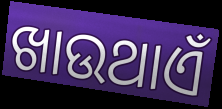
ଖାଉଥାଏଁ